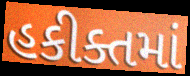
હકીક્તમાં